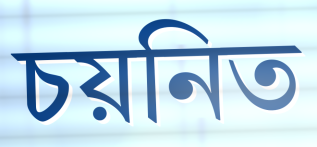
চয়নিত